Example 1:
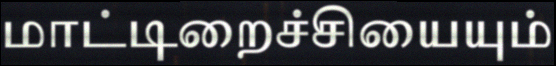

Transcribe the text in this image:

மாட்டிறைச்சியையும்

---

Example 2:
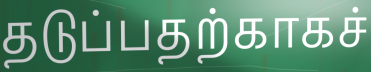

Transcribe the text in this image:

தடுப்பதற்காகச்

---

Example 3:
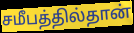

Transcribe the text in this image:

சமீபத்தில்தான்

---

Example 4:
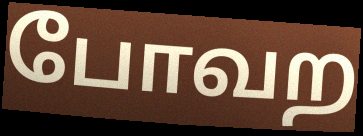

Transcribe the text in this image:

போவற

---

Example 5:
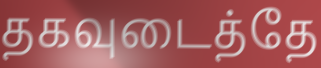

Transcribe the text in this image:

தகவுடைத்தே